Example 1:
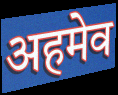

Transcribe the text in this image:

अहमेव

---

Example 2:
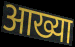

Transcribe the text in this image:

आख्या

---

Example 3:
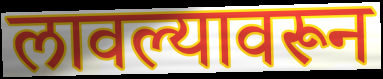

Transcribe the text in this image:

लावल्यावरून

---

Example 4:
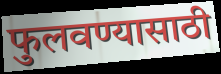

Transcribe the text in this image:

फुलवण्यासाठी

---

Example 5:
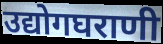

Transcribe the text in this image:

उद्योगघराणी